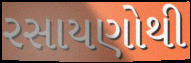
રસાયણોથી